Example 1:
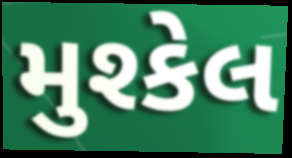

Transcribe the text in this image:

મુશ્કેલ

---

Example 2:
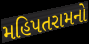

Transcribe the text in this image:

મહિપતરામનો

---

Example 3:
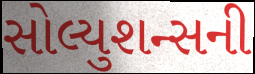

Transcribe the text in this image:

સોલ્યુશન્સની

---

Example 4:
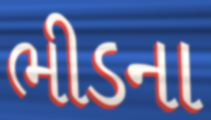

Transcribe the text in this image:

ભીડના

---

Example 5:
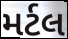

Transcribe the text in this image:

મર્ટલ